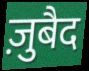
ज़ुबैद